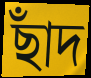
ছাঁদ